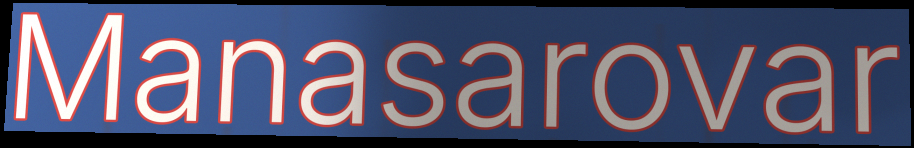
Manasarovar